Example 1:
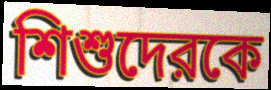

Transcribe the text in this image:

শিশুদেরকে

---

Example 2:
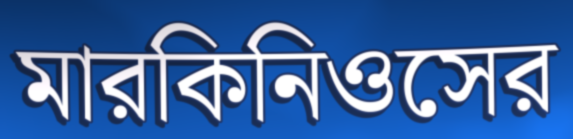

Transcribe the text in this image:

মারকিনিওসের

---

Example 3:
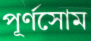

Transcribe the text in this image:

পূর্ণসোম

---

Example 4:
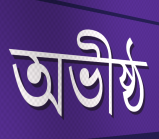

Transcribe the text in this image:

অভীষ্ঠ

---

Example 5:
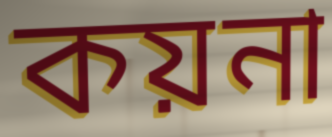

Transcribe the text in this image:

কয়না